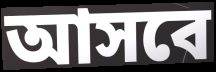
আসবে